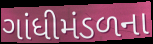
ગાંધીમંડળના